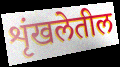
शृंखलेतील